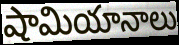
షామియానాలు